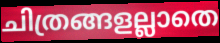
ചിത്രങ്ങളല്ലാതെ